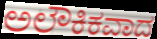
ಅಲೌಕಿಕವಾದ